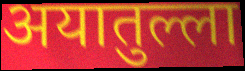
अयातुल्ला